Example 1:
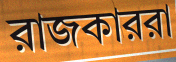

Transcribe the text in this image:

রাজকাররা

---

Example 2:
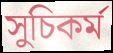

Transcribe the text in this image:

সুচিকর্ম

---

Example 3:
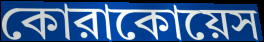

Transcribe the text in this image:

কোরাকোয়েস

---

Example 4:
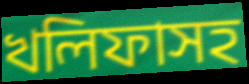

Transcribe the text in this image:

খলিফাসহ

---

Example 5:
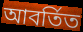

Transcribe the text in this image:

আবর্তিত